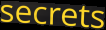
secrets